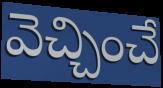
వెచ్చించే